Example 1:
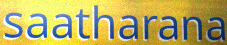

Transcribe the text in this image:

saatharana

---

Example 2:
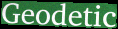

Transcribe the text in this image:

Geodetic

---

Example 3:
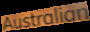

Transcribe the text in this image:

Australian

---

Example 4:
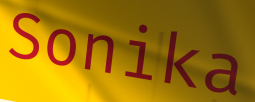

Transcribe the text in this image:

Sonika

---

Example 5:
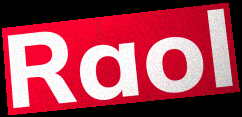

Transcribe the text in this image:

Raol